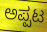
ಅಪ್ಪಟ